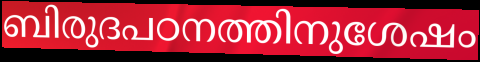
ബിരുദപഠനത്തിനുശേഷം